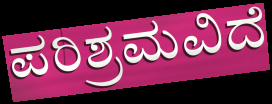
ಪರಿಶ್ರಮವಿದೆ